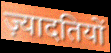
ज़्यादतियों